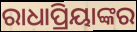
ରାଧାପ୍ରିୟାଙ୍କର